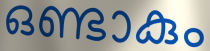
ഒണ്ടാകും